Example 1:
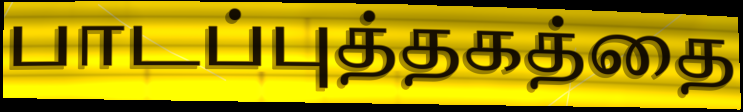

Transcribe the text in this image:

பாடப்புத்தகத்தை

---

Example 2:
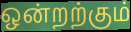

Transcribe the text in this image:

ஒன்றற்கும்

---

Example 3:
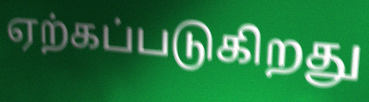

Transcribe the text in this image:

ஏற்கப்படுகிறது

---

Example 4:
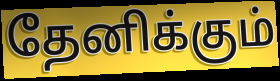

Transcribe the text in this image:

தேனிக்கும்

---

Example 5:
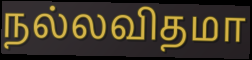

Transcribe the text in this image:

நல்லவிதமா